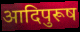
आदिपुरूष